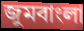
জুমবাংলা